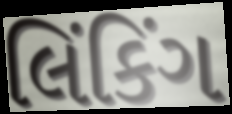
લિંકિંગ